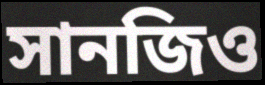
সানজিও